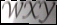
WXY